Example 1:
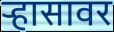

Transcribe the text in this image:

ऱ्हासावर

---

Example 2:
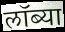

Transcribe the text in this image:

लॉब्या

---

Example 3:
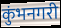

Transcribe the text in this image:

कुंभनगरी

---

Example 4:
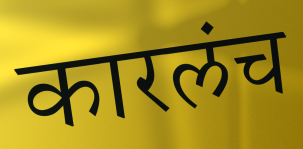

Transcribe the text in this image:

कारलंच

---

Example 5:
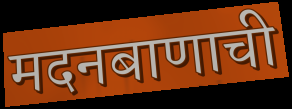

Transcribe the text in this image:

मदनबाणाची